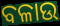
ବଳାଉ